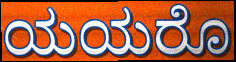
ಯಯರೊ